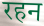
रहन